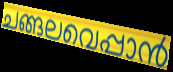
ചങ്ങലവെപ്പാൻ